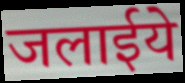
जलाईये